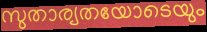
സുതാര്യതയോടെയും